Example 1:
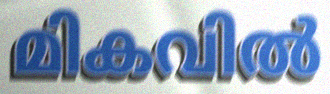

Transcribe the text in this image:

മികവിൽ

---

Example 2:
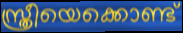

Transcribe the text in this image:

സ്ത്രീയെക്കൊണ്ട്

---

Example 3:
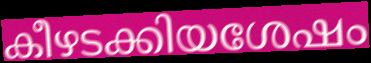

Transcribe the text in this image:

കീഴടക്കിയശേഷം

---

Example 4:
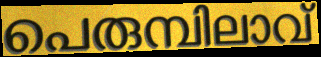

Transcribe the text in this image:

പെരുമ്പിലാവ്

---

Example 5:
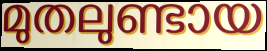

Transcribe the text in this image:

മുതലുണ്ടായ